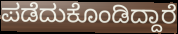
ಪಡೆದುಕೊಂಡಿದ್ದಾರೆ